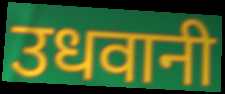
उधवानी